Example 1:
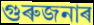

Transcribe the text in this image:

গুৰুজনাৰ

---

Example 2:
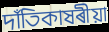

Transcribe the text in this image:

দাঁতিকাষৰীয়া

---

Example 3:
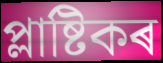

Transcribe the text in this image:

প্লাষ্টিকৰ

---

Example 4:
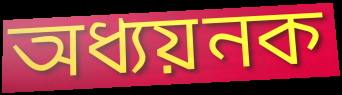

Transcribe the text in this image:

অধ্যয়নক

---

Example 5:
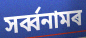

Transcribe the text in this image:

সৰ্ব্বনামৰ